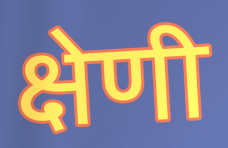
क्षेणी